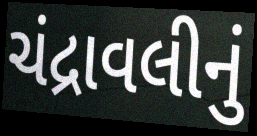
ચંદ્રાવલીનું